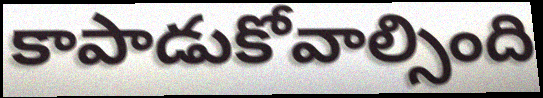
కాపాడుకోవాల్సింది